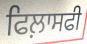
ਫਿਲ਼ਾਸਫੀ